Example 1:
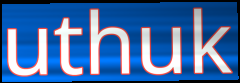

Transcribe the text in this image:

uthuk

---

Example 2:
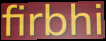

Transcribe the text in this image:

firbhi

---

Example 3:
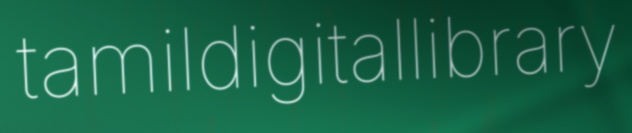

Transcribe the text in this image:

tamildigitallibrary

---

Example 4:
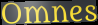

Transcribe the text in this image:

Omnes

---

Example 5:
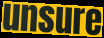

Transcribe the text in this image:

unsure